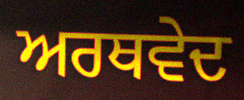
ਅਰਥਵੇਦ